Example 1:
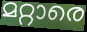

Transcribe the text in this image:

മറ്റാരെ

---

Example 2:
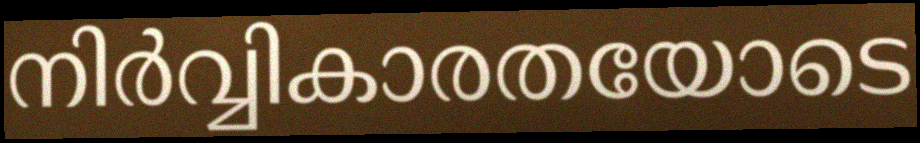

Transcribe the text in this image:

നിർവ്വികാരതയോടെ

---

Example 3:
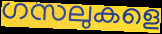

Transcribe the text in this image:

ഗസലുകളെ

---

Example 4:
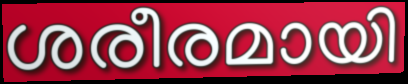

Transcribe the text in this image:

ശരീരമായി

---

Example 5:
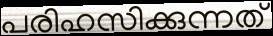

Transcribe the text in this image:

പരിഹസിക്കുന്നത്